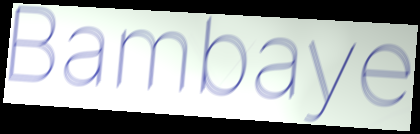
Bambaye